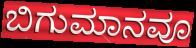
ಬಿಗುಮಾನವೂ